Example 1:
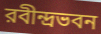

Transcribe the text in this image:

রবীন্দ্রভবন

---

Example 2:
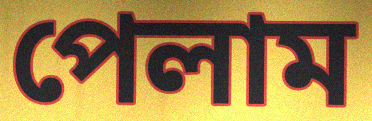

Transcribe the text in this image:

পেলাম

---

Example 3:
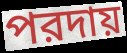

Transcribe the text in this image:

পরদায়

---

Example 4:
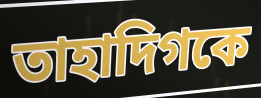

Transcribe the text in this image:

তাহাদিগকে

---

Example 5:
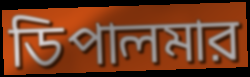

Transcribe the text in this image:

ডিপালমার